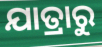
ଯାତ୍ରାରୁ